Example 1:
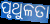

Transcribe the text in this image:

ପୃଥୁଳତା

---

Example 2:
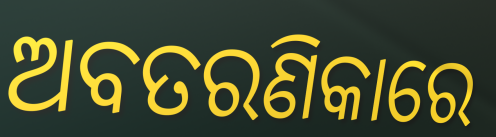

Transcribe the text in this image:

ଅବତରଣିକାରେ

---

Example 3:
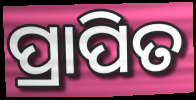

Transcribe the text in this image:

ପ୍ରାପିତ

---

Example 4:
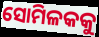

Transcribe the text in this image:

ସୋମିଳକକୁ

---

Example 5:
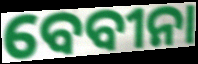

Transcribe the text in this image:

ବେବୀନା